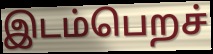
இடம்பெறச்